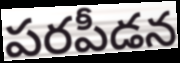
పరపీడన